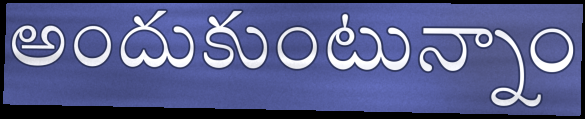
అందుకుంటున్నాం